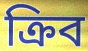
ক্রিব